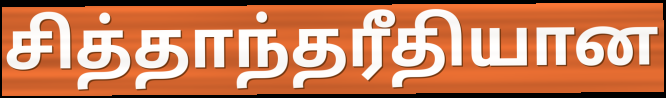
சித்தாந்தரீதியான